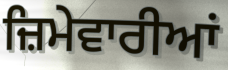
ਜ਼ਿਮੇਵਾਰੀਆਂ